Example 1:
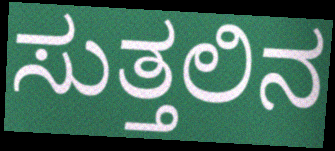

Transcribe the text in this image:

ಸುತ್ತಲಿನ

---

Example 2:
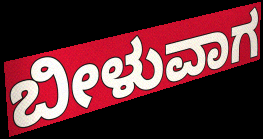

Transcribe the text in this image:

ಬೀಳುವಾಗ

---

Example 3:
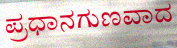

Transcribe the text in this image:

ಪ್ರಧಾನಗುಣವಾದ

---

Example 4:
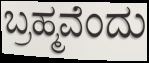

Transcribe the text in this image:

ಬ್ರಹ್ಮವೆಂದು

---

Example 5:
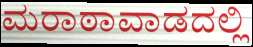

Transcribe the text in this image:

ಮರಾಠಾವಾಡದಲ್ಲಿ